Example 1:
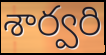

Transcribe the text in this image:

శార్వరి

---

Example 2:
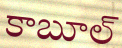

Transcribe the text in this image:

కాబూల్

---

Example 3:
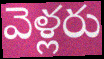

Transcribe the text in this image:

వెళ్లరు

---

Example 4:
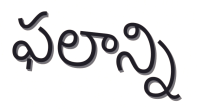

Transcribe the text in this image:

ఫలాన్ని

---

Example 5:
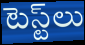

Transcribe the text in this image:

టెస్ట్‌లు